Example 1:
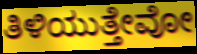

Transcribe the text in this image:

ತಿಳಿಯುತ್ತೇವೋ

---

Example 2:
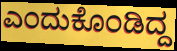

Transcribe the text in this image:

ಎಂದುಕೊಂಡಿದ್ದ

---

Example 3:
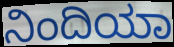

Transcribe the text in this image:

ನಿಂದಿಯಾ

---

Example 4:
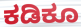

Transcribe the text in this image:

ಕಡಿಕೂ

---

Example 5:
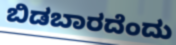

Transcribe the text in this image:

ಬಿಡಬಾರದೆಂದು